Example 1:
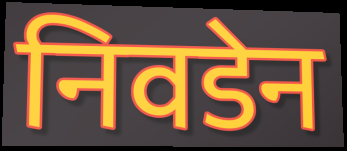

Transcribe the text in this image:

निवडेन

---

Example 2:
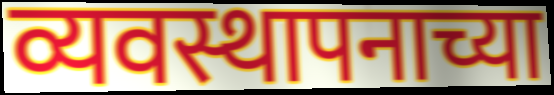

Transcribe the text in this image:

व्यवस्थापनाच्या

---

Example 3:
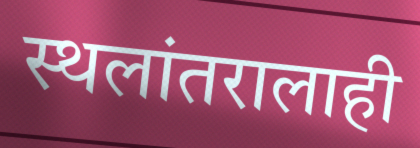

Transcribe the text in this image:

स्थलांतरालाही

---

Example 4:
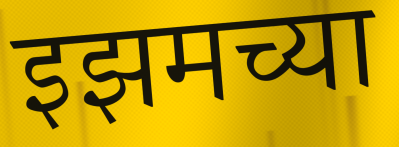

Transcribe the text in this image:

इझमच्या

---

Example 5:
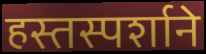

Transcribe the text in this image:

हस्तस्पर्शाने